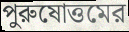
পুরুষোত্তমের